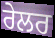
ਰੇਲਰ